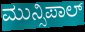
ಮುನ್ಸಿಪಾಲ್